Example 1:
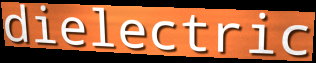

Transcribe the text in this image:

dielectric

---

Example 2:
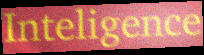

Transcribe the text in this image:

Inteligence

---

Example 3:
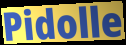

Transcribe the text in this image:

Pidolle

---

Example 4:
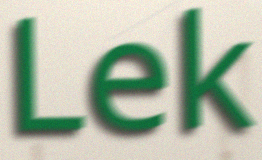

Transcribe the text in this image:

Lek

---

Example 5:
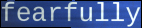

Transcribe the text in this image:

fearfully